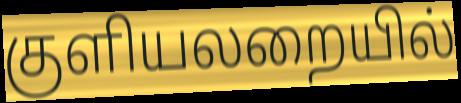
குளியலறையில்